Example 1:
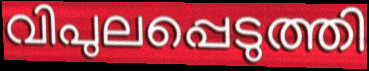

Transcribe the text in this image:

വിപുലപ്പെടുത്തി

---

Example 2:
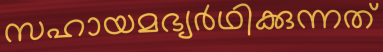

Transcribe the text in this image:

സഹായമഭ്യർഥിക്കുന്നത്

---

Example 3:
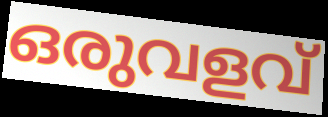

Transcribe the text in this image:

ഒരുവളവ്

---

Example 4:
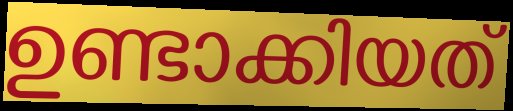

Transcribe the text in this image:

ഉണ്ടാക്കിയത്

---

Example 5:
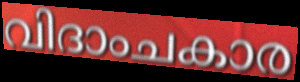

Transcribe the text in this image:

വിദാംചകാര